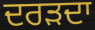
ਦਰੜਦਾ